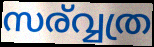
സര്വ്വത്ര